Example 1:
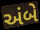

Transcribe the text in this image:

અંબે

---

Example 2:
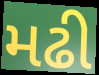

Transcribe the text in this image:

મઢી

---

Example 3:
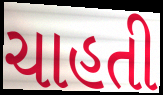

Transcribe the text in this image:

ચાહતી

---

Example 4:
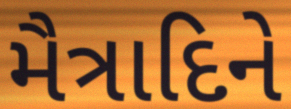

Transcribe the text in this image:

મૈત્રાદિને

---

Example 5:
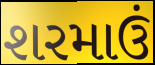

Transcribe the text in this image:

શરમાઉં